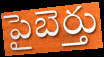
పైబెర్తు